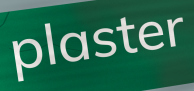
plaster